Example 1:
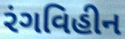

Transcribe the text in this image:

રંગવિહીન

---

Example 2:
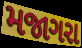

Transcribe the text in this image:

મજાગરા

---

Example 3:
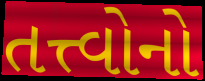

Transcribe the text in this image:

તત્ત્વોનો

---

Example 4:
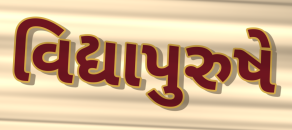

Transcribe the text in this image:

વિદ્યાપુરુષે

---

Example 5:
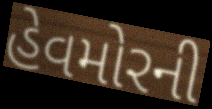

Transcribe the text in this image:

હેવમોરની